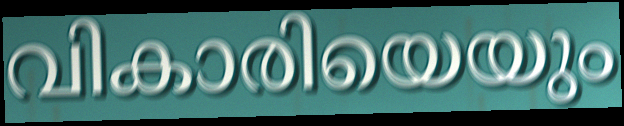
വികാരിയെയും